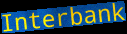
Interbank